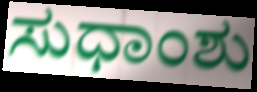
ಸುಧಾಂಶು